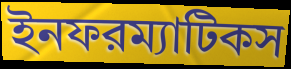
ইনফরম্যাটিকস